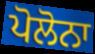
ਪੋਲੋਨਾ